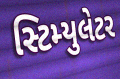
સ્ટિમ્યુલેટર